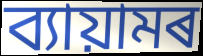
ব্যায়ামৰ